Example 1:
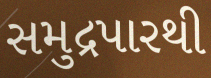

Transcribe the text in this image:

સમુદ્રપારથી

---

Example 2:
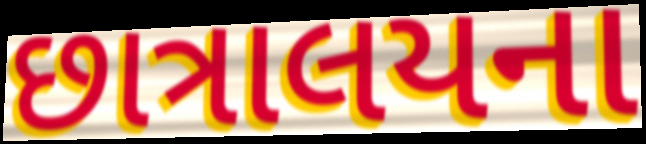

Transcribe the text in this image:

છાત્રાલયના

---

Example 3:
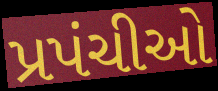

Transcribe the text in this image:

પ્રપંચીઓ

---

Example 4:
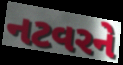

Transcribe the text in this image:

નટવરને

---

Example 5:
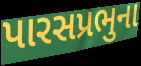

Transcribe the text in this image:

પારસપ્રભુના